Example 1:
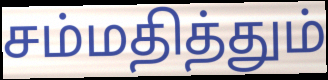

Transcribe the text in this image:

சம்மதித்தும்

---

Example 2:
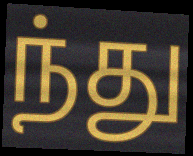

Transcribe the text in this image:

ந்து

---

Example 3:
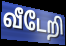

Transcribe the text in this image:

வீடேறி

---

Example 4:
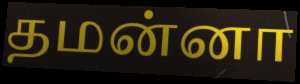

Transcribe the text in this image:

தமன்னா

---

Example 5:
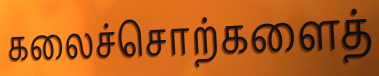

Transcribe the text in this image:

கலைச்சொற்களைத்